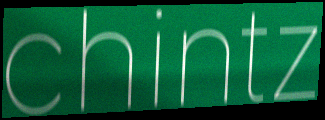
chintz